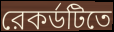
রেকর্ডটিতে